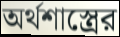
অর্থশাস্ত্রের